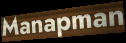
Manapman